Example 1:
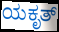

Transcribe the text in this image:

ಯಕೃತ್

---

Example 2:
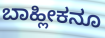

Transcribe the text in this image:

ಬಾಹ್ಲೀಕನೂ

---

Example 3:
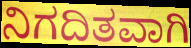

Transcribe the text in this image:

ನಿಗದಿತವಾಗಿ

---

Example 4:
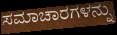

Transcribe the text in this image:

ಸಮಾಚಾರಗಳನ್ನು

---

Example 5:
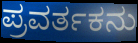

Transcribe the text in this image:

ಪ್ರವರ್ತಕನು